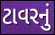
ટાવરનું